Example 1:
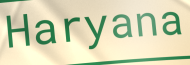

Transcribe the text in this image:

Haryana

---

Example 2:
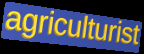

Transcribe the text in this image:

agriculturist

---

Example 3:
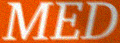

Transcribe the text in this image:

MED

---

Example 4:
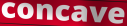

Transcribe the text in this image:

concave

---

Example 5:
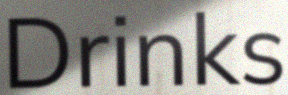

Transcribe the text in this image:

Drinks